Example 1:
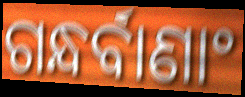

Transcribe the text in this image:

ଗନ୍ଧର୍ବାଣାଂ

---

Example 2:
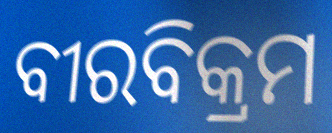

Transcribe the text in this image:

ବୀରବିକ୍ରମ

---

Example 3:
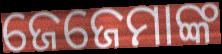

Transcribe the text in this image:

ଜେଜେମାଙ୍କ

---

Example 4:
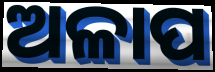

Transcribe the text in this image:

ଅଳାପ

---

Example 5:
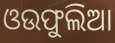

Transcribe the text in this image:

ଓଉଫୁଲିଆ